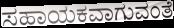
ಸಹಾಯಕವಾಗುವಂತೆ